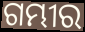
ଗମ୍ଭୀର